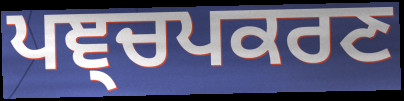
ਪਞ੍ਚਪਕਰਣ